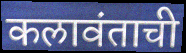
कलावंताची